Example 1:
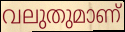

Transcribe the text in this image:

വലുതുമാണ്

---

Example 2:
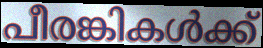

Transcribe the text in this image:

പീരങ്കികൾക്ക്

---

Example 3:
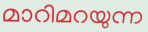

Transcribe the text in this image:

മാറിമറയുന്ന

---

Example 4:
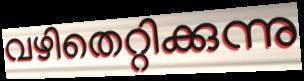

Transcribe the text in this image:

വഴിതെറ്റിക്കുന്നു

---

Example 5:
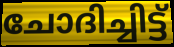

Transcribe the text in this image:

ചോദിച്ചിട്ട്